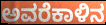
ಅವರೆಕಾಳಿನ